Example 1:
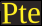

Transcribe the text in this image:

Pte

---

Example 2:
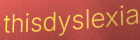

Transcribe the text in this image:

thisdyslexia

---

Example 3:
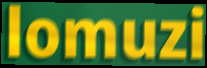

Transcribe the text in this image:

lomuzi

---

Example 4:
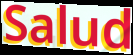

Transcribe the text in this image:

Salud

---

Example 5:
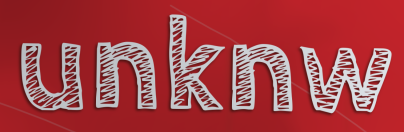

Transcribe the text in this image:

unknw